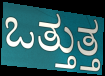
ಒತ್ತುತ್ತ